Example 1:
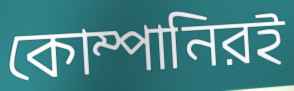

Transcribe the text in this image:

কোম্পানিরই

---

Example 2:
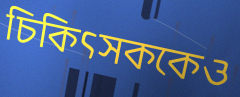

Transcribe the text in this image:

চিকিৎসককেও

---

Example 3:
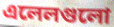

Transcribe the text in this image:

এলেলগুলো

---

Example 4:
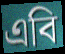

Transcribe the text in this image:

এবি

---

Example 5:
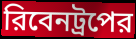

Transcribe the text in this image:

রিবেনট্রপের